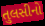
તુલસીનો